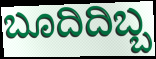
ಬೂದಿದಿಬ್ಬ